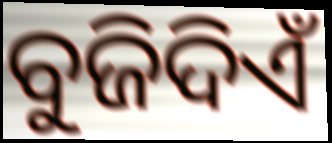
ବୁଜିଦିଏଁ